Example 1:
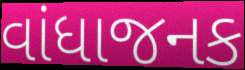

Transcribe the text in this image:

વાંધાજનક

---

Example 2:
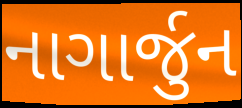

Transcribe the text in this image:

નાગાર્જુન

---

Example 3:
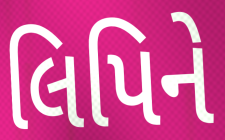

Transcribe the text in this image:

લિપિને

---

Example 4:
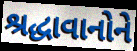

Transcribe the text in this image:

શ્રદ્ધાવાનોને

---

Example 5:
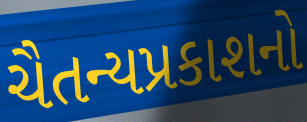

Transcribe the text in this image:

ચૈતન્યપ્રકાશનો